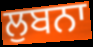
ਲੁਬਨਾ